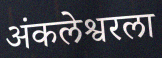
अंकलेश्वरला